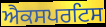
ਐਕਸਪਰਟਿਸ